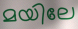
മയിലേ